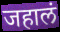
जहालं